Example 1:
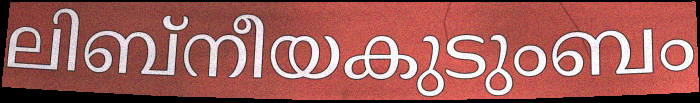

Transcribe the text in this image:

ലിബ്നീയകുടുംബം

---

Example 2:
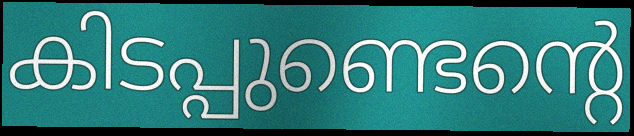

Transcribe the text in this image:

കിടപ്പുണ്ടെന്റെ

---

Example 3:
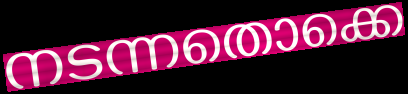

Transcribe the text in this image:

നടന്നതൊക്കെ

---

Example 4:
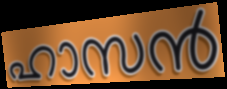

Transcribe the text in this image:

ഹാസൻ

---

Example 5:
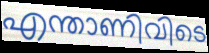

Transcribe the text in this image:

എന്താണിവിടെ